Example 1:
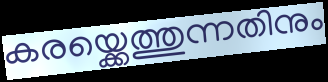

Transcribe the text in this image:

കരയ്ക്കെത്തുന്നതിനും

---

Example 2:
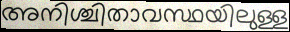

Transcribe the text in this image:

അനിശ്ചിതാവസ്ഥയിലുള്ള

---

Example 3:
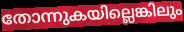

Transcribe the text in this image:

തോന്നുകയില്ലെങ്കിലും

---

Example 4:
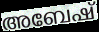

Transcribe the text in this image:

അബേഷ്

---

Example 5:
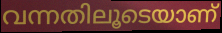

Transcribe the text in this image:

വന്നതിലൂടെയാണ്